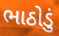
ભાઠોડું